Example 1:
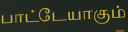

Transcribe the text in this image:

பாட்டேயாகும்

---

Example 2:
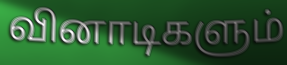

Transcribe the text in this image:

வினாடிகளும்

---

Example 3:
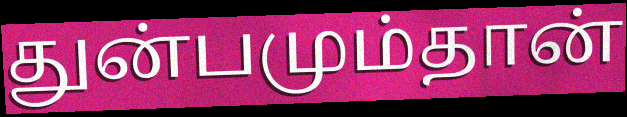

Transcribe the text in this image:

துன்பமும்தான்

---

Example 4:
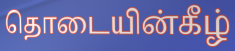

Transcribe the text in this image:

தொடையின்கீழ்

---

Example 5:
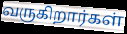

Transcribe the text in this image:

வருகிறார்கள்